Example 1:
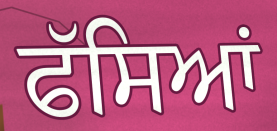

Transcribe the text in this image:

ਫੱਸਿਆਂ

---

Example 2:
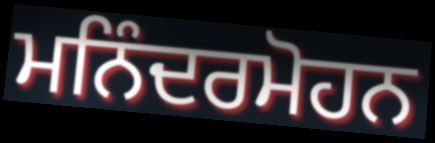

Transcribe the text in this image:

ਮਨਿੰਦਰਮੋਹਨ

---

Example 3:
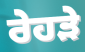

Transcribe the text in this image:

ਰੇਹੜੇ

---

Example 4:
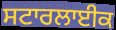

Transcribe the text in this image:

ਸਟਾਰਲਾਈਕ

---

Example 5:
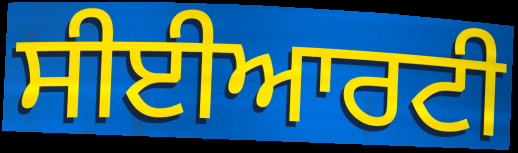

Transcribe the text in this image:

ਸੀਈਆਰਟੀ